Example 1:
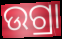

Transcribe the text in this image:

ଉଗ୍ରା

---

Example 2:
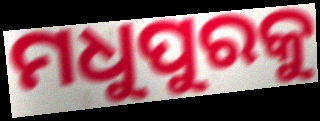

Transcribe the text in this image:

ମଧୁପୁରକୁ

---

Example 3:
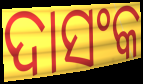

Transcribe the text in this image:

ଦାସଂକ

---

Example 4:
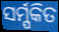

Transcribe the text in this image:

ସର୍ମ୍ପକିତ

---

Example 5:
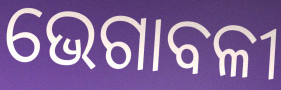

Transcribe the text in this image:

ଭେଗାବଳୀ